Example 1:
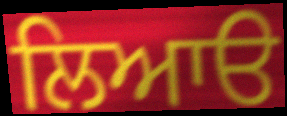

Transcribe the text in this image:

ਲਿਆੳ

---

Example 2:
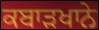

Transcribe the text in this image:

ਕਬਾੜਖਾਨੇ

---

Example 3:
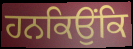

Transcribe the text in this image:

ਹਨਕਿਉਂਕਿ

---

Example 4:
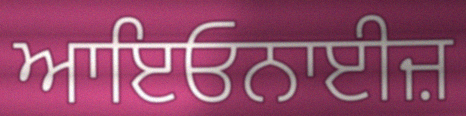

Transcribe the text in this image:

ਆਇਓਨਾਈਜ਼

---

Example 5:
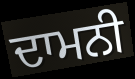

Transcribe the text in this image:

ਦਾਮਨੀ